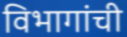
विभागांची